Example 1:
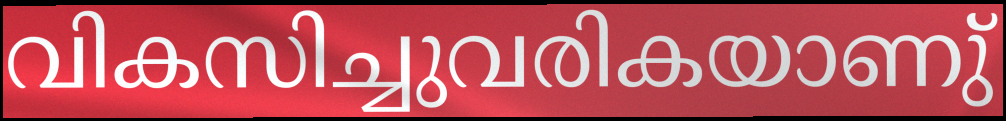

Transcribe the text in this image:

വികസിച്ചുവരികയാണു്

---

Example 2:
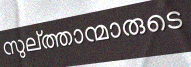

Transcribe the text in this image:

സുല്ത്താന്മാരുടെ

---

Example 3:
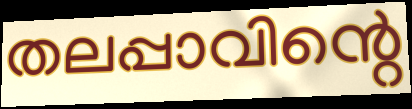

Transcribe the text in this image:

തലപ്പാവിന്റെ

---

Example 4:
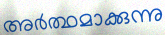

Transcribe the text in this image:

അർത്ഥമാക്കുന്നു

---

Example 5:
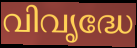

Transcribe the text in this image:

വിവൃദ്ധേ